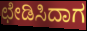
ಛೇಡಿಸಿದಾಗ